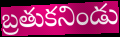
బ్రతుకనిండు